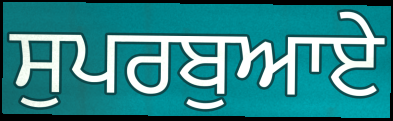
ਸੁਪਰਬੁਆਏ